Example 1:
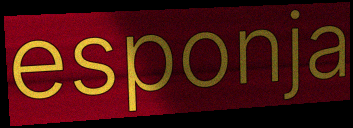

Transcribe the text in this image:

esponja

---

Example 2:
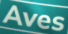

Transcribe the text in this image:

Aves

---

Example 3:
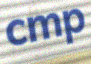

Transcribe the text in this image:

cmp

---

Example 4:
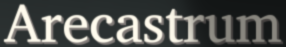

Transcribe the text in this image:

Arecastrum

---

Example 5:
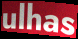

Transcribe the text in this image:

ulhas